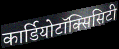
कार्डियोटॉक्सिसिटी